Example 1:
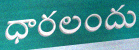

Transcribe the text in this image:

ధారలందు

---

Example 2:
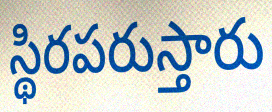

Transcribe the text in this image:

స్థిరపరుస్తారు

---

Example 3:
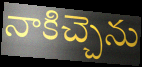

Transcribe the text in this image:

నాకిచ్చెను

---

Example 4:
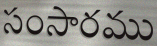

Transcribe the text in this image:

సంసారము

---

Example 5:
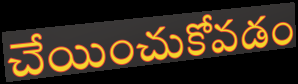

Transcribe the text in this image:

చేయించుకోవడం